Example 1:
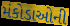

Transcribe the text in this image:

મંકોડાઓની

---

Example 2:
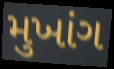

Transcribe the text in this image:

મુખાંગ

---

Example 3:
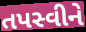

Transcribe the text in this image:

તપસ્વીને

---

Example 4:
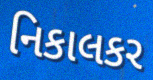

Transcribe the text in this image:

નિકાલકર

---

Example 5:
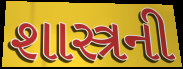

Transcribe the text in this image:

શાસ્ત્રની